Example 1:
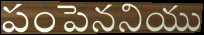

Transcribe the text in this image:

పంపెననియు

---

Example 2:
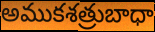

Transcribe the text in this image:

అముకశత్రుబాధా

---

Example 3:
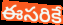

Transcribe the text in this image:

ఈసరికే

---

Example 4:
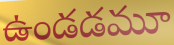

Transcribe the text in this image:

ఉండడమూ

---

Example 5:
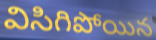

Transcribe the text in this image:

విసిగిపోయిన